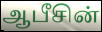
ஆபீசின்